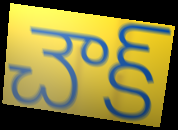
చౌక్